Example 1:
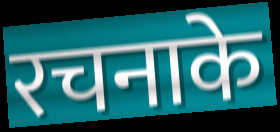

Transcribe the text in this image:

रचनाके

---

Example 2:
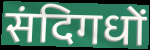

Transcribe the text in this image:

संदिगधों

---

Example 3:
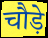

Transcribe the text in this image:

चौड़े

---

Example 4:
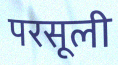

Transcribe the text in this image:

परसूली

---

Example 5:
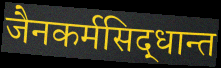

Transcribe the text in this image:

जैनकर्मसिद्धान्त